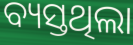
ବ୍ୟସ୍ତଥିଲା